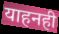
याहनही